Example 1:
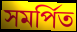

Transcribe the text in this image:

সমৰ্পিত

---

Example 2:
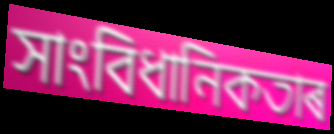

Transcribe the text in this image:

সাংবিধানিকতাৰ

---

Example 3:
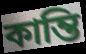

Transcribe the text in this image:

কান্তি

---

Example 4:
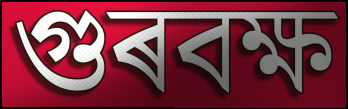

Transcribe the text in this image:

গুৰবক্ষ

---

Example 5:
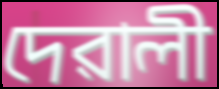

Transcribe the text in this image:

দেৱালী